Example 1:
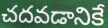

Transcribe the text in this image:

చదవడానికే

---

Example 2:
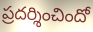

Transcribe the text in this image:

ప్రదర్శించిందో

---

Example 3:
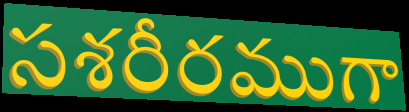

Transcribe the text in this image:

సశరీరముగా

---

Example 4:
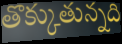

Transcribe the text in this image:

తొక్కుతున్నది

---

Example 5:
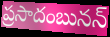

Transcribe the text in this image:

ప్రసాదంబునన్